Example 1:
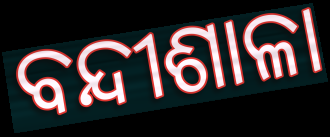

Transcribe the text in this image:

ବନ୍ଦୀଶାଳା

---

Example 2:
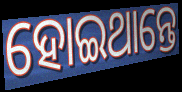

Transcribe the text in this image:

ହୋଇଥାନ୍ତେ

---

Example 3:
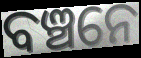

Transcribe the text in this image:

ବଞ୍ଚନେ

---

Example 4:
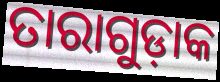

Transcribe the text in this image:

ତାରାଗୁଡ଼ାକ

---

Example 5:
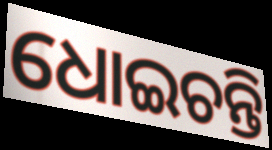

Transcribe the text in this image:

ଧୋଇଚନ୍ତି